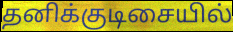
தனிக்குடிசையில்